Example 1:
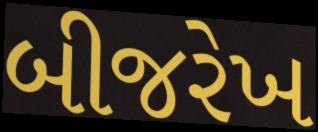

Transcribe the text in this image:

બીજરેખ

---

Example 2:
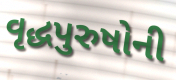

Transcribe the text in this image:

વૃદ્ધપુરુષોની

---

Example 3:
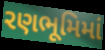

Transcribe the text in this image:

રણભૂમિમાં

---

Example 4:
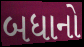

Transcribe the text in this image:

બધાનો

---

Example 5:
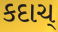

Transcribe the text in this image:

કદાચ્